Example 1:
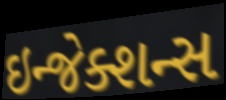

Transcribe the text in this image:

ઇન્જેક્શન્સ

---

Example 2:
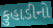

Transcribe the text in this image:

કુહાડીનો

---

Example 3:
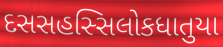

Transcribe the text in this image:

દસસહસ્સિલોકધાતુયા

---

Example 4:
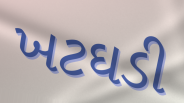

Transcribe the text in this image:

ખટઘડી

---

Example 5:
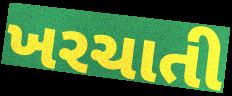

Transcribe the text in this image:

ખરચાતી